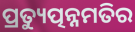
ପ୍ରତ୍ୟୁତ୍ପନ୍ନମତିର